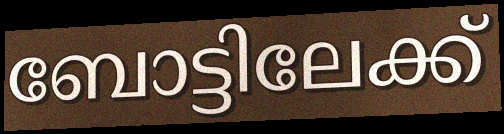
ബോട്ടിലേക്ക്